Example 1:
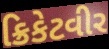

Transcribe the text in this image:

ક્રિકેટવીર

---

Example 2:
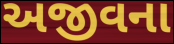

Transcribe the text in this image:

અજીવના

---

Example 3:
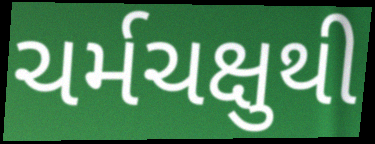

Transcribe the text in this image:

ચર્મચક્ષુથી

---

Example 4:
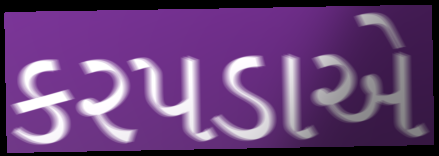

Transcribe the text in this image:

કરપડાએ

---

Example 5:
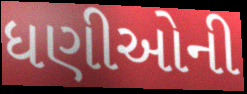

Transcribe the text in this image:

ધણીઓની